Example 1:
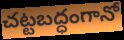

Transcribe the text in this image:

చట్టబద్ధంగానో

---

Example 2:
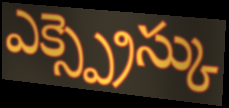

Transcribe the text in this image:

ఎక్స్ప్రెస్కు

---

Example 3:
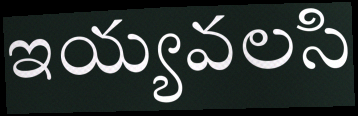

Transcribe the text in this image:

ఇయ్యవలసి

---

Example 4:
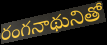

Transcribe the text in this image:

రంగనాథునితో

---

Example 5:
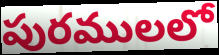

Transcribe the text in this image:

పురములలో